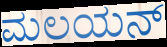
ಮಲಯನ್